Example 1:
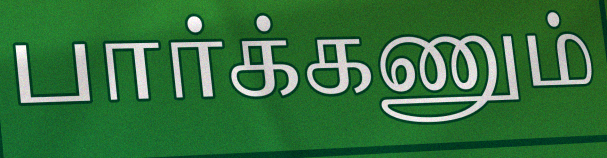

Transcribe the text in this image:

பார்க்கணும்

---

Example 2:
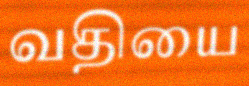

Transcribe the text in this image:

வதியை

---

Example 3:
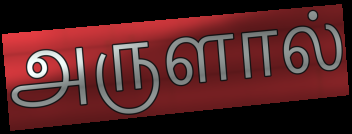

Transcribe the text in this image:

அருளால்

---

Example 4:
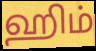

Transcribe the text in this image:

ஹிம்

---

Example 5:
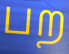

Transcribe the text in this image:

பற